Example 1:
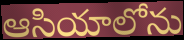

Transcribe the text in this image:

ఆసియాలోను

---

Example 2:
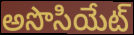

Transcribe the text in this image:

అసొసియేట్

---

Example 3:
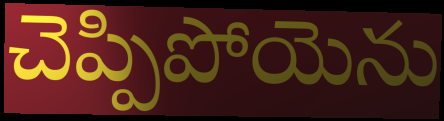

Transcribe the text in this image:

చెప్పిపోయెను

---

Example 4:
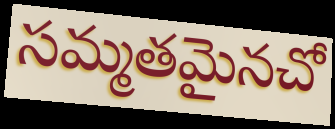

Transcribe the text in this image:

సమ్మతమైనచో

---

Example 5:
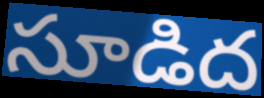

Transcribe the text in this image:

సూడిద